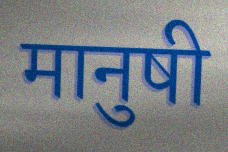
मानुषी